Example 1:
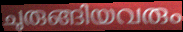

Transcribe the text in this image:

ചുരുങ്ങിയവരും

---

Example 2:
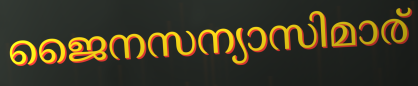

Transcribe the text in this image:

ജൈനസന്യാസിമാര്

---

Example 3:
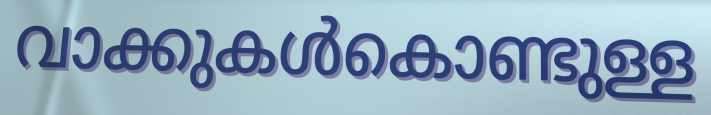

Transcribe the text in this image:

വാക്കുകൾകൊണ്ടുള്ള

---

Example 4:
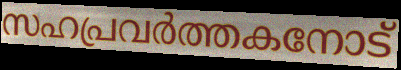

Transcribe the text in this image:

സഹപ്രവർത്തകനോട്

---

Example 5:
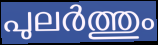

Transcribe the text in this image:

പുലർത്തും